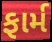
ફાર્મ